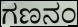
ಗಣನಂ